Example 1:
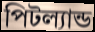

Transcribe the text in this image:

পিটল্যান্ড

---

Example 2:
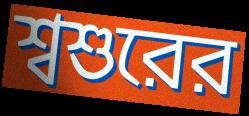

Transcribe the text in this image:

শ্বশুরের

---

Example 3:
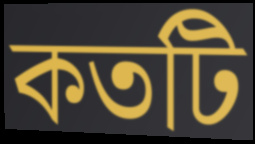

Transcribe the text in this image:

কতটি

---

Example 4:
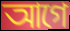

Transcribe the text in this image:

আগে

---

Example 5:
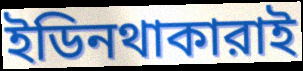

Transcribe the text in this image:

ইডিনথাকারাই